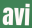
avi